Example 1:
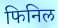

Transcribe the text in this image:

फिनिल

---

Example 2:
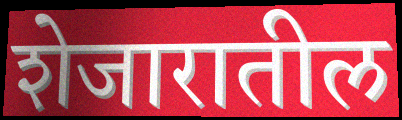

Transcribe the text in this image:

शेजारातील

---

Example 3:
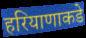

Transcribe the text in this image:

हरियाणाकडे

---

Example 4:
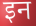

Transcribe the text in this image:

इन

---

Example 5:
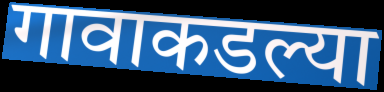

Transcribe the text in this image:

गावाकडल्या